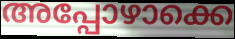
അപ്പോഴാക്കെ